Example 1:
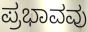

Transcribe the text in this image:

ಪ್ರಭಾವವು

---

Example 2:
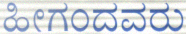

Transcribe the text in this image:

ಹೀಗಂದವರು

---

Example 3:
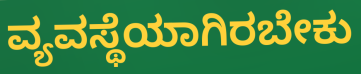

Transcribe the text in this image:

ವ್ಯವಸ್ಥೆಯಾಗಿರಬೇಕು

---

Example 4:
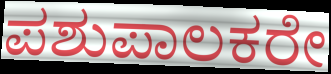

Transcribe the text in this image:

ಪಶುಪಾಲಕರೇ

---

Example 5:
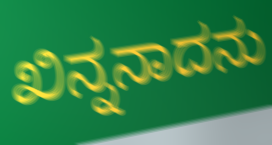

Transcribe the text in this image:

ಖಿನ್ನನಾದನು